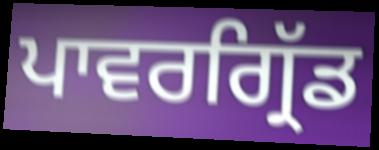
ਪਾਵਰਗ੍ਰਿੱਡ